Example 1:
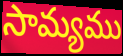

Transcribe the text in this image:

సామ్యము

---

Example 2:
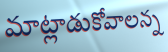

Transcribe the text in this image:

మాట్లాడుకోవాలన్న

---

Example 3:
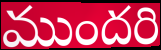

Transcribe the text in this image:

ముందరి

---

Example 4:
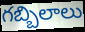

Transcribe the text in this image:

గబ్బిలాలు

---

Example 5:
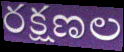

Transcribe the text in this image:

రక్షణల